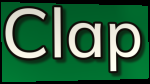
Clap